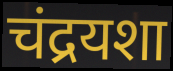
चंद्रयशा